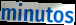
minutos